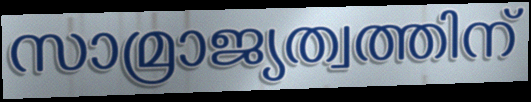
സാമ്രാജ്യത്വത്തിന്